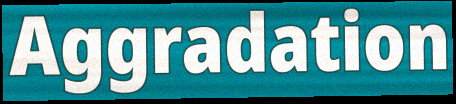
Aggradation